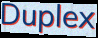
Duplex